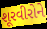
શૂરવીરોને